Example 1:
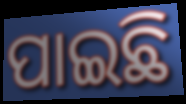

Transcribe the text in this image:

ପାଇଛି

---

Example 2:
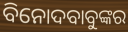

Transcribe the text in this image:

ବିନୋଦବାବୁଙ୍କର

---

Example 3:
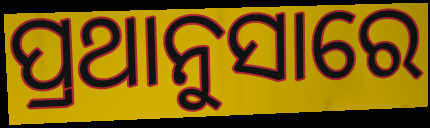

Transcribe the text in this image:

ପ୍ରଥାନୁସାରେ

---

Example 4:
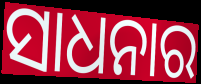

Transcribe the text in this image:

ସାଧନାର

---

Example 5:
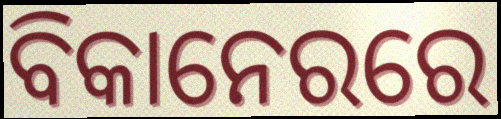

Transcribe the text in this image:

ବିକାନେରରେ